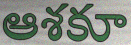
ఆశకూ